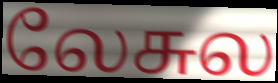
லேசுல